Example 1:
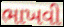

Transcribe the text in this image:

ભાખવી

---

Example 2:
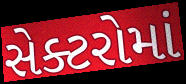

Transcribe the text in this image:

સેક્ટરોમાં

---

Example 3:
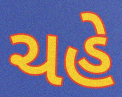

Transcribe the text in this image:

ચહે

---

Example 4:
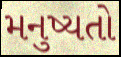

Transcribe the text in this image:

મનુષ્યતો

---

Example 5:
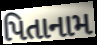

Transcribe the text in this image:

પિતાનામ